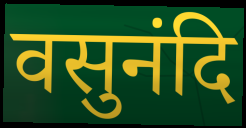
वसुनंदि